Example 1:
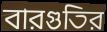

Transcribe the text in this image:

বারগুতির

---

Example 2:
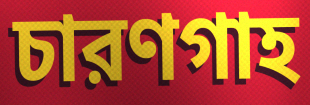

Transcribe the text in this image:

চারণগাহ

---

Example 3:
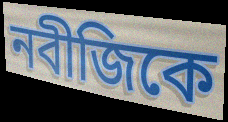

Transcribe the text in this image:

নবীজিকে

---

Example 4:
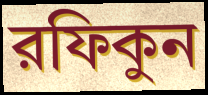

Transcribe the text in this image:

রফিকুন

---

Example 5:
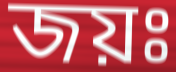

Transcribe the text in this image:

জয়ঃ